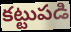
కట్టుపడి